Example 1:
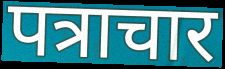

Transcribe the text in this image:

पत्राचार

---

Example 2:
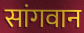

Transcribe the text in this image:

सांगवान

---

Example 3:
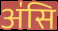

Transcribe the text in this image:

अ॑सि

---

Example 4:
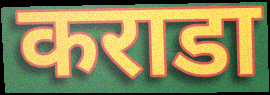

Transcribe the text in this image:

कराडा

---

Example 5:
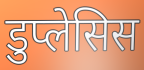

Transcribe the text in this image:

डुप्लेसिस